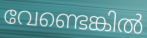
വേണ്ടെങ്കിൽ